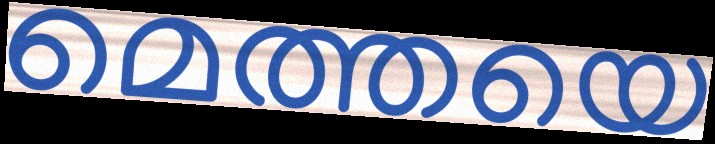
മെത്തയെ